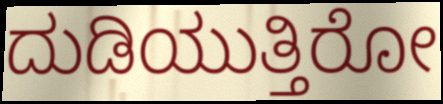
ದುಡಿಯುತ್ತಿರೋ